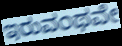
ಇರುವಂಥವೇ